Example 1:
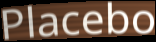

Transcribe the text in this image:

Placebo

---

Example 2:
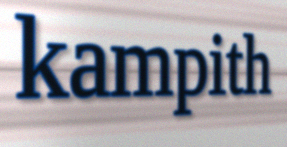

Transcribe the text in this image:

kampith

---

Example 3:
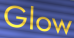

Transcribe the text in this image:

Glow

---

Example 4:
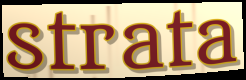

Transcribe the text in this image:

strata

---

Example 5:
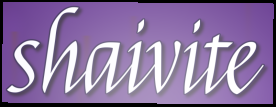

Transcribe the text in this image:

shaivite